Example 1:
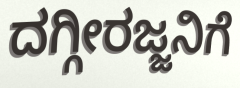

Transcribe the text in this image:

ದಗ್ಗೀರಜ್ಜನಿಗೆ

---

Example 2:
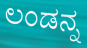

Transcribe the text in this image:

ಲಂಡನ್ನ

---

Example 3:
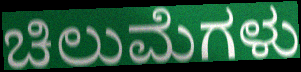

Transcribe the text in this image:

ಚಿಲುಮೆಗಳು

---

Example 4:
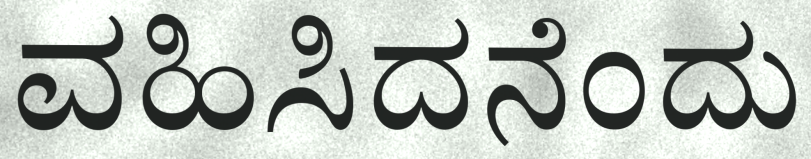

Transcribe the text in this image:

ವಹಿಸಿದನೆಂದು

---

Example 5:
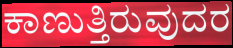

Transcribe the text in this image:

ಕಾಣುತ್ತಿರುವುದರ